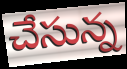
చేసున్న